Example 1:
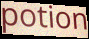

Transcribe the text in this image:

potion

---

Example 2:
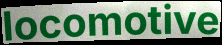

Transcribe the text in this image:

locomotive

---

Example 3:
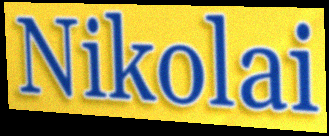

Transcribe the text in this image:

Nikolai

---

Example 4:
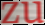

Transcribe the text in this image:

zu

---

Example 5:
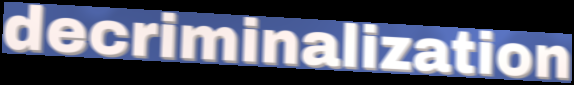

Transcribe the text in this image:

decriminalization